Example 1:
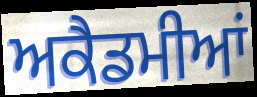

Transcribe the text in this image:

ਅਕੈਡਮੀਆਂ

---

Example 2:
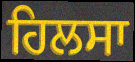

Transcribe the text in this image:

ਹਿਲਸਾ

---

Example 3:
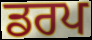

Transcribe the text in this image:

ਡਰਪ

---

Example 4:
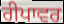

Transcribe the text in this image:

ਰੀਪਾਵਰ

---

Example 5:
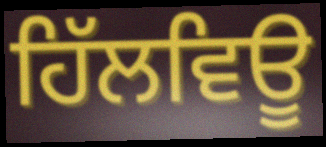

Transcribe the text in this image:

ਹਿੱਲਵਿਊ